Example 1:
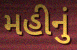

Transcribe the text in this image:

મહીનું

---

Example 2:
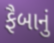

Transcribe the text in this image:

ફૈબાનું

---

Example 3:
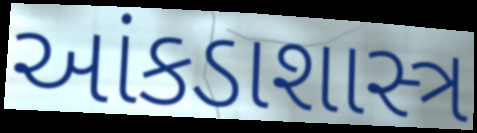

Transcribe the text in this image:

આંકડાશાસ્ત્ર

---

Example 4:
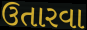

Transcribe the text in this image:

ઉતારવા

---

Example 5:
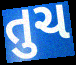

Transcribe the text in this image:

તુચ